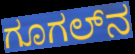
ಗೂಗಲ್‌ನ